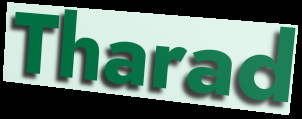
Tharad